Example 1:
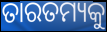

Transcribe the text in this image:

ତାରତମ୍ୟକୁ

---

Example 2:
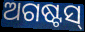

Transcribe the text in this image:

ଅଗଷ୍ଟସ୍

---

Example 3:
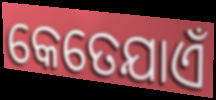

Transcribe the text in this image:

କେତେଯାଏଁ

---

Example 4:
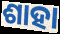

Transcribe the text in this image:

ଶାହା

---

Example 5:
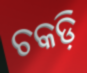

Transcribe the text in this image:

ଚକଡ଼ି